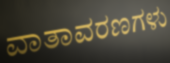
ವಾತಾವರಣಗಳು